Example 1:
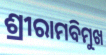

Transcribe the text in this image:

ଶ୍ରୀରାମବିମୁଖ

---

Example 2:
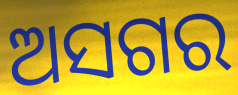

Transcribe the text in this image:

ଅସଗର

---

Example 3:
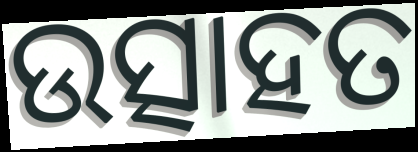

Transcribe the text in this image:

ଉତ୍ସାହତ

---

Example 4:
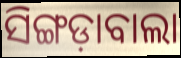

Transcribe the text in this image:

ସିଙ୍ଗଡ଼ାବାଲା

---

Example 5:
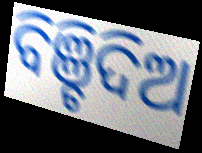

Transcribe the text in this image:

ବିଞ୍ଚିଦିଅ